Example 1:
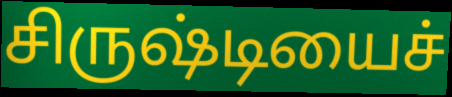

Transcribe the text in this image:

சிருஷ்டியைச்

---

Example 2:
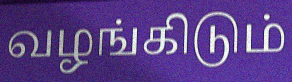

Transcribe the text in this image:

வழங்கிடும்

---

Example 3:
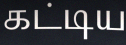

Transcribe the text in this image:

கட்டிய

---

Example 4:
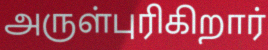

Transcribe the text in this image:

அருள்புரிகிறார்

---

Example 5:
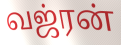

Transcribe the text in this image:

வஜ்ரன்